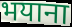
भयाना